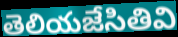
తెలియజేసితివి